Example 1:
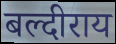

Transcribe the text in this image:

बल्दीराय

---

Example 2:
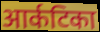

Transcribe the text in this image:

आर्कटिका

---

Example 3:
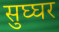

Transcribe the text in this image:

सुघ्घर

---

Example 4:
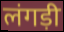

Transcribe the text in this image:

लंगड़ी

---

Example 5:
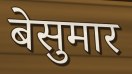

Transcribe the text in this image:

बेसुमार